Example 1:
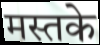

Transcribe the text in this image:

मस्तके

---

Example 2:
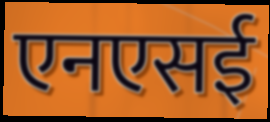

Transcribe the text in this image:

एनएसई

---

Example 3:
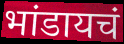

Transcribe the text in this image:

भांडायचं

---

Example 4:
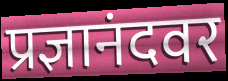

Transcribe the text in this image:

प्रज्ञानंदवर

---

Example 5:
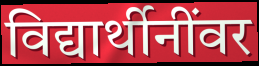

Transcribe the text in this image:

विद्यार्थीनींवर